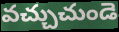
వచ్చుచుండె